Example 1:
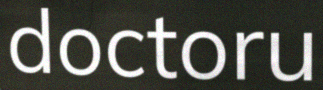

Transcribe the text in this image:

doctoru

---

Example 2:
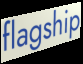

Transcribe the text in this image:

flagship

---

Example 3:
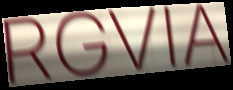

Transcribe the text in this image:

RGVIA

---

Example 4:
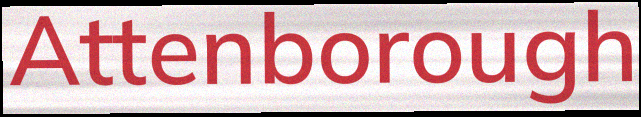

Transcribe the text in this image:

Attenborough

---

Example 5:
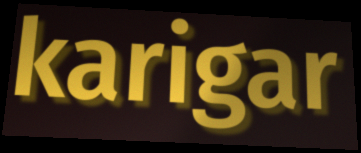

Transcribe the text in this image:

karigar